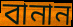
বানান